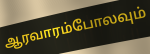
ஆரவாரம்போலவும்